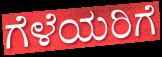
ಗೆಳೆಯರಿಗೆ